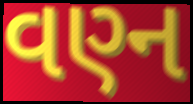
વણ્ન